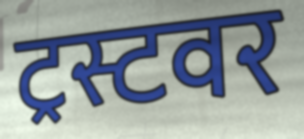
ट्रस्टवर